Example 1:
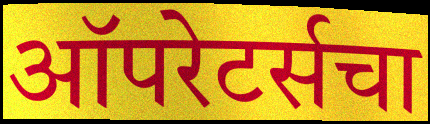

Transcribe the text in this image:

ऑपरेटर्सचा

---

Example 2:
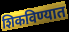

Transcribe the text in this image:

शिकविण्यात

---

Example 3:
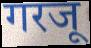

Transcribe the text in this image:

गरजू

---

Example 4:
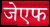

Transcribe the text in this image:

जेएफ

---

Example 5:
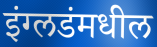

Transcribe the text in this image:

इंग्लडंमधील